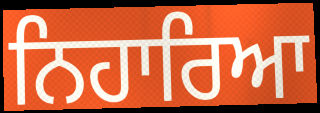
ਨਿਹਾਰਿਆ